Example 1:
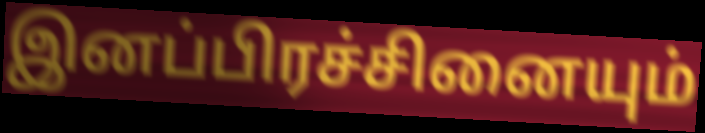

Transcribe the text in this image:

இனப்பிரச்சினையும்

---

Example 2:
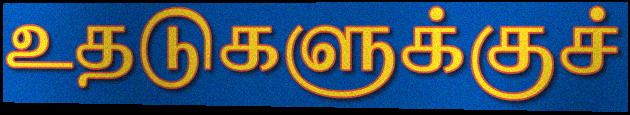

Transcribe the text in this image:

உதடுகளுக்குச்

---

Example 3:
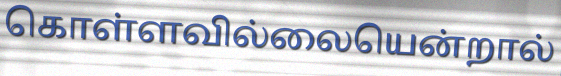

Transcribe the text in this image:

கொள்ளவில்லையென்றால்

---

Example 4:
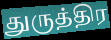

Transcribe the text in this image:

துருத்திர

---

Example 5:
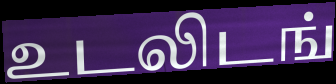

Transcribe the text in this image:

உடலிடங்